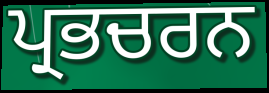
ਪ੍ਰਭਚਰਨ